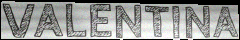
VALENTINA